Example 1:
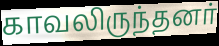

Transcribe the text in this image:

காவலிருந்தனர்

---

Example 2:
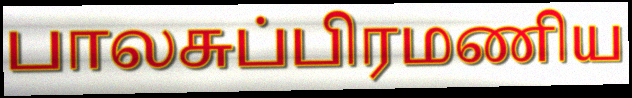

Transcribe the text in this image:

பாலசுப்பிரமணிய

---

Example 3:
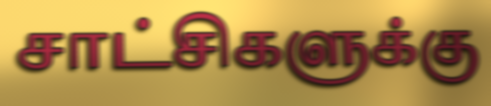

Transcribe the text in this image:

சாட்சிகளுக்கு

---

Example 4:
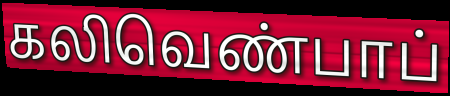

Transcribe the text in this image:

கலிவெண்பாப்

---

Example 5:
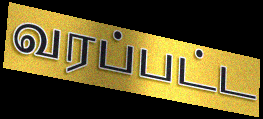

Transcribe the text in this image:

வரப்பட்ட